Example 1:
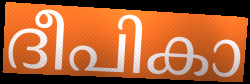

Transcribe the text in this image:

ദീപികാ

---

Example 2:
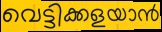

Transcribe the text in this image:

വെട്ടിക്കളയാൻ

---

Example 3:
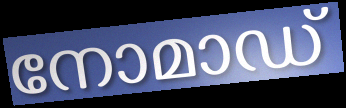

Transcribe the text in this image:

നോമാഡ്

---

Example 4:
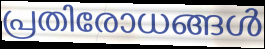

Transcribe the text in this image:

പ്രതിരോധങ്ങൾ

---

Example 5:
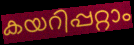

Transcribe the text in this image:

കയറിപ്പറ്റാം